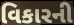
વિકારની